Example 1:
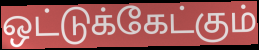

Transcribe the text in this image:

ஒட்டுக்கேட்கும்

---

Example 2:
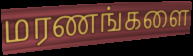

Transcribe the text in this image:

மரணங்களை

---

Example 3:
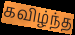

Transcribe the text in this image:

கவிழ்ந்த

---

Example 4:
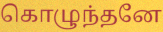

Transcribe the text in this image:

கொழுந்தனே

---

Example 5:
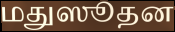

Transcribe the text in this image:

மதுஸூதன